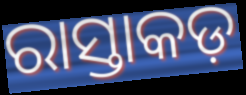
ରାସ୍ତାକଡ଼